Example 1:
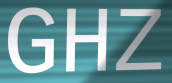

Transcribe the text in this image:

GHZ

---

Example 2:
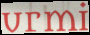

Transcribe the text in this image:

urmi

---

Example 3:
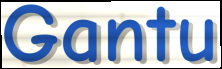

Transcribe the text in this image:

Gantu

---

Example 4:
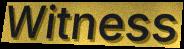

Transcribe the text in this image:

Witness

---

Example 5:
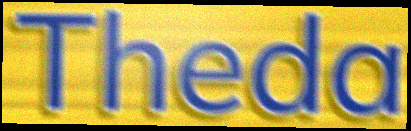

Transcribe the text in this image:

Theda